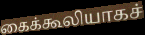
கைக்கூலியாகச்